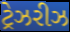
ટ્રેઝરીઝ